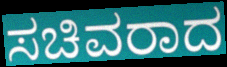
ಸಚಿವರಾದ